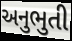
અનુભુતી